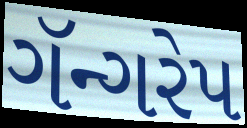
ગૅન્ગરેપ